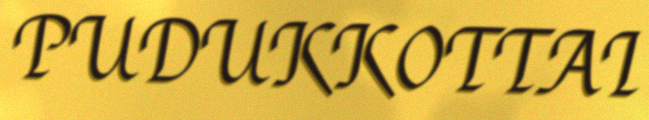
PUDUKKOTTAI